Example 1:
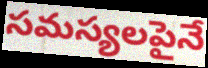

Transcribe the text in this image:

సమస్యలపైనే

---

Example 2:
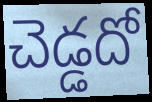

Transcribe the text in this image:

చెడ్డదో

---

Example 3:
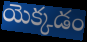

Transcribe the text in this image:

యెక్కడం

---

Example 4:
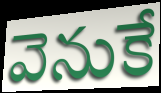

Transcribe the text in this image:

వెనుకే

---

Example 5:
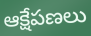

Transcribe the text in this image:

ఆక్షేపణలు